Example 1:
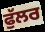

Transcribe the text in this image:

ਫੁੱਲਰ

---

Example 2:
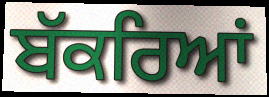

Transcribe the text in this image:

ਬੱਕਰਿਆਂ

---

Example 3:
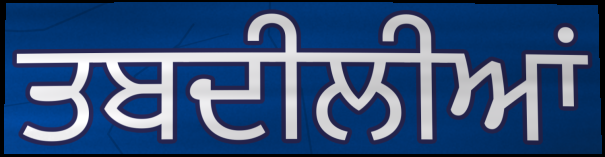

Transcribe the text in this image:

ਤਬਦੀਲੀਆਂ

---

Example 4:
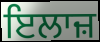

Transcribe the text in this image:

ਇਲਾਜ਼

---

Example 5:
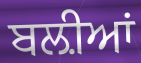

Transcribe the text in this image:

ਬਲ਼ੀਆਂ